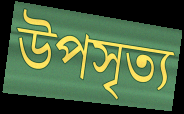
উপসৃত্য